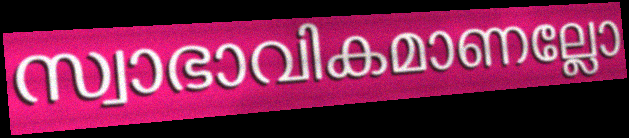
സ്വാഭാവികമാണല്ലോ